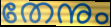
തേനും